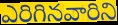
ఎరిగినవారిని